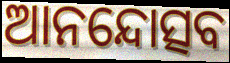
ଆନନ୍ଦୋତ୍ସବ